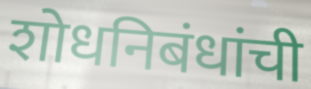
शोधनिबंधांची